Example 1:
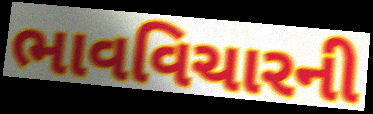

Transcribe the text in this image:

ભાવવિચારની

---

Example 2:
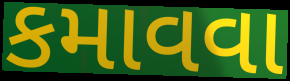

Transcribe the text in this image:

કમાવવા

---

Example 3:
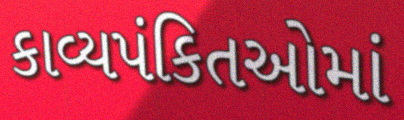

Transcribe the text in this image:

કાવ્યપંકિતઓમાં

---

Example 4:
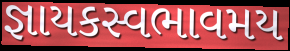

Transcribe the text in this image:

જ્ઞાયકસ્વભાવમય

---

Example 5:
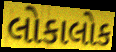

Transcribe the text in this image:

લોકાલોક